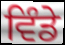
ਵਿੰਡੇ